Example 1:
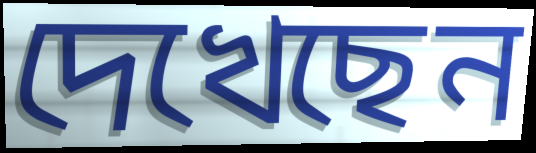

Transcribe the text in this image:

দেখেছেন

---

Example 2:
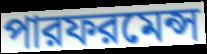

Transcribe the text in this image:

পারফরমেন্স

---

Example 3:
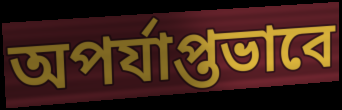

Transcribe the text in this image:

অপর্যাপ্তভাবে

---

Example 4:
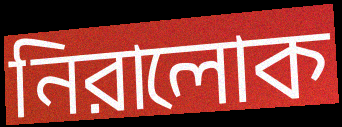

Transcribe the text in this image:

নিরালোক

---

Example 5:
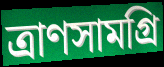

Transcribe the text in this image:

ত্রাণসামগ্রি